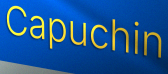
Capuchin